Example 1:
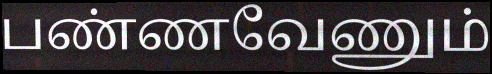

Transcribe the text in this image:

பண்ணவேணும்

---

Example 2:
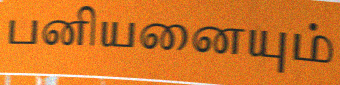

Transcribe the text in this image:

பனியனையும்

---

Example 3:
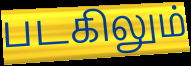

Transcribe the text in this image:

படகிலும்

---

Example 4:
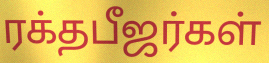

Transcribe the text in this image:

ரக்தபீஜர்கள்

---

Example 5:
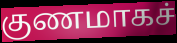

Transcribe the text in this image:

குணமாகச்